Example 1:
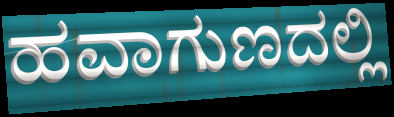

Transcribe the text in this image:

ಹವಾಗುಣದಲ್ಲಿ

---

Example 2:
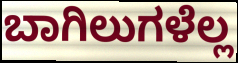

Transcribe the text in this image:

ಬಾಗಿಲುಗಳೆಲ್ಲ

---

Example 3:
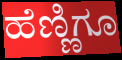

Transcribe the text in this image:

ಹೆಣ್ಣಿಗೂ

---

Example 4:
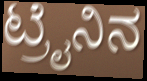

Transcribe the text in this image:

ಟ್ರೈನಿನ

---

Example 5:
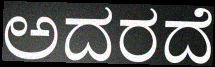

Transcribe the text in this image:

ಅದರದೆ